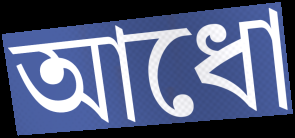
আধো